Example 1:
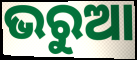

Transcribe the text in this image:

ଭରୁଆ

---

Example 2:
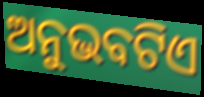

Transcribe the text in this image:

ଅନୁଭବଟିଏ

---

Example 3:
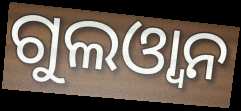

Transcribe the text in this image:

ଗୁଲଓ୍ୱାନ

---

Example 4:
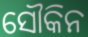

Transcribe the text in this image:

ସୌକିନ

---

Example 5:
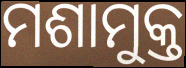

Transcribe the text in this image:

ମଶାମୁକ୍ତ